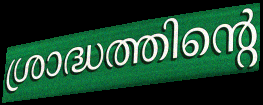
ശ്രാദ്ധത്തിന്റെ